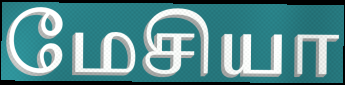
மேசியா